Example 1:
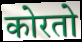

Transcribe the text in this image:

कोरतो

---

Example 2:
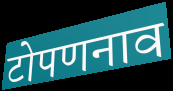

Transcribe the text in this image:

टोपणनाव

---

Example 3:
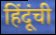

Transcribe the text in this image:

हिंदूंची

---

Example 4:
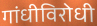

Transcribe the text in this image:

गांधीविरोधी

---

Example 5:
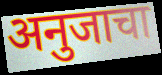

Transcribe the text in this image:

अनुजाचा